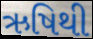
ઋષિથી